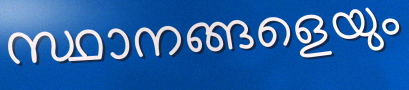
സ്ഥാനങ്ങളെയും